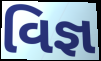
વિજ્ઞ